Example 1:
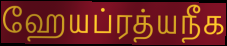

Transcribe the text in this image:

ஹேயப்ரத்யநீக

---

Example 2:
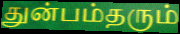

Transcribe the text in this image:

துன்பம்தரும்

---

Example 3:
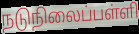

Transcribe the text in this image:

நடுநிலைப்பள்ளி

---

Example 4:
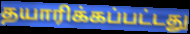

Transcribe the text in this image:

தயாரிக்கப்பட்டது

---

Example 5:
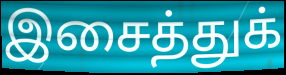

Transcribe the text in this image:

இசைத்துக்